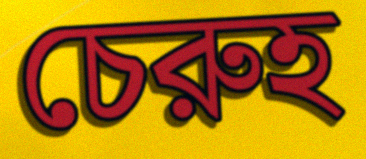
চেরুহ